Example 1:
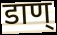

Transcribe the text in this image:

डाण्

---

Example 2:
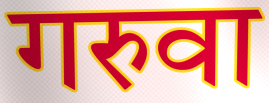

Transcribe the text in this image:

गरुवा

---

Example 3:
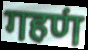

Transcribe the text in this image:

गहणं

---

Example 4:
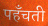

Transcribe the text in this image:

पहँचती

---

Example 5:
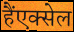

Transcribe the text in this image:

हैंएक्सेल